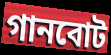
গানবোট